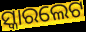
ସ୍କାରଲେଟ